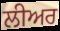
ਲੀਅਰ